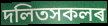
দলিতসকলৰ